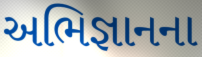
અભિજ્ઞાનના